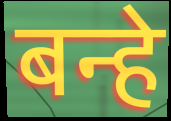
बन्हे